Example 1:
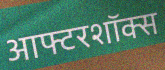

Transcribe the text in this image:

आफ्टरशॉक्स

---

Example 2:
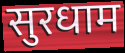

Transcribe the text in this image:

सुरधाम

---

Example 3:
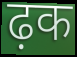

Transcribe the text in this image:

ढ़क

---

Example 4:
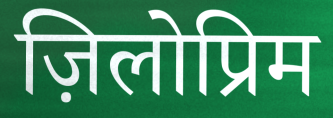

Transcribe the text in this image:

ज़िलोप्रिम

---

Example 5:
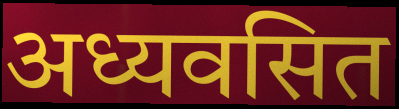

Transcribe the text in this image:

अध्यवसित